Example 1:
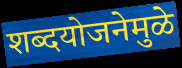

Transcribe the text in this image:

शब्दयोजनेमुळे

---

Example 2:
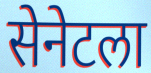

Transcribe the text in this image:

सेनेटला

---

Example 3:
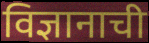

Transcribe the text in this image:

विज्ञानाची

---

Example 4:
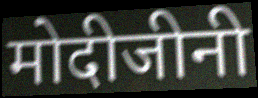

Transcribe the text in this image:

मोदीजीनी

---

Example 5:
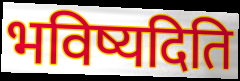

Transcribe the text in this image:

भविष्यदिति